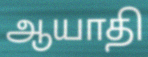
ஆயாதி